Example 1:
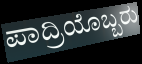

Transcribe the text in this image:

ಪಾದ್ರಿಯೊಬ್ಬರು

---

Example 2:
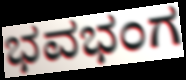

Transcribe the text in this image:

ಭವಭಂಗ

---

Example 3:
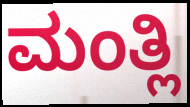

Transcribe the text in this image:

ಮಂತ್ಲಿ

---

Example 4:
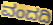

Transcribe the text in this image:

ವಂದದಿ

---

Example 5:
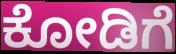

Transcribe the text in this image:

ಕೋಡಿಗೆ